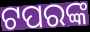
ଟପରଙ୍କ